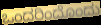
ಒಂದರಿಂದೊಂದು